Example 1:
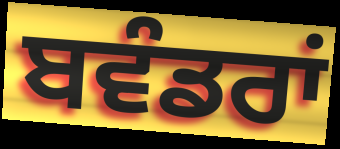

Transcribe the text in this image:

ਬਵੰਡਰਾਂ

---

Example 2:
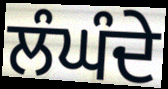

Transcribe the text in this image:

ਲੰਘੰਦੇ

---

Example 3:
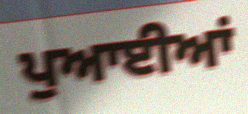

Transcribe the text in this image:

ਪੁਆਈਆਂ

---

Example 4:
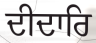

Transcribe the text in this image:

ਦੀਦਾਰਿ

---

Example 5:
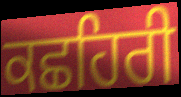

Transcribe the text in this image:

ਕਛਹਿਰੀ